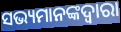
ସଭ୍ୟମାନଙ୍କଦ୍ୱାରା